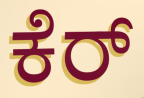
ಕೆರ್